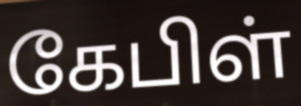
கேபிள்